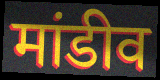
मांडीव